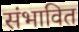
संभावित